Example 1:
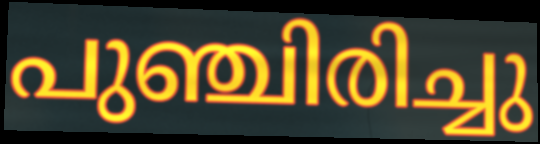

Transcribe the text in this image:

പുഞ്ചിരിച്ചു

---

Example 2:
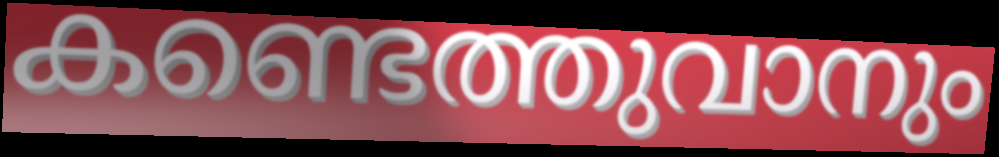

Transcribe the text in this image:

കണ്ടെത്തുവാനും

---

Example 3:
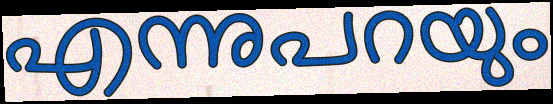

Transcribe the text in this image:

എന്നുപറയും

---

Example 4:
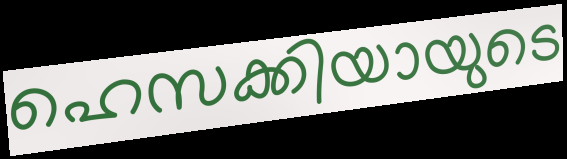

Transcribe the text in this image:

ഹെസക്കിയായുടെ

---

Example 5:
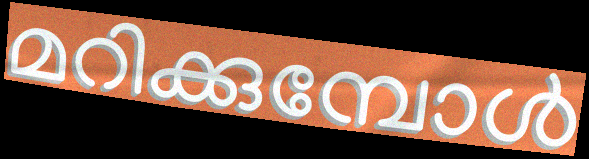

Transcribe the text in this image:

മറിക്കുമ്പോൾ